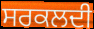
ਸਰਕਲਦੀ